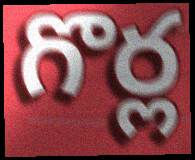
గొర్ల